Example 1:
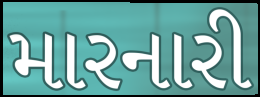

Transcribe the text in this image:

મારનારી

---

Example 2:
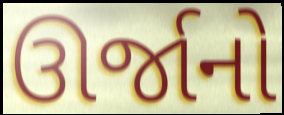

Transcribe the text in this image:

ઊર્જાનો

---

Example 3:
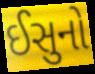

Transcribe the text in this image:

ઈસુનો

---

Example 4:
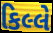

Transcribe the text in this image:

કિલ્લે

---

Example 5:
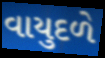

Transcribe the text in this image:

વાયુદળે